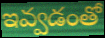
ఇవ్వడంతో